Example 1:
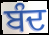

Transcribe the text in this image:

ਬੰਦ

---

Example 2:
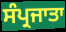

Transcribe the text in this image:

ਸੰਪ੍ਰਜਾਤਾ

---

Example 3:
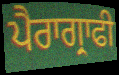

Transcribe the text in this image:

ਪੈਰਾਗ੍ਰਾਫੀ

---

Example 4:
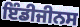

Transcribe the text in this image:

ਇੰਡੀਜੀਨਸ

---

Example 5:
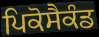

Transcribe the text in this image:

ਪਿਕੋਸੈਕੰਡ